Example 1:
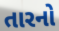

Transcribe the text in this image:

તારનો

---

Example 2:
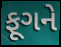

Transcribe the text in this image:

ફૂગને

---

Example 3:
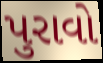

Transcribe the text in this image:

પુરાવો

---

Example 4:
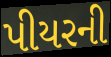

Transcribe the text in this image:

પીયરની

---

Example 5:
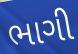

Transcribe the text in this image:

ભાગી